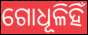
ଗୋଧୂଳିହିଁ